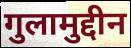
गुलामुद्दीन